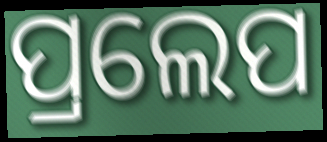
ପ୍ରଲେପ